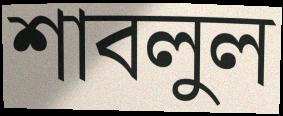
শাবলুল